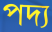
পদ্য